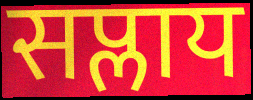
सप्लाय